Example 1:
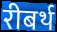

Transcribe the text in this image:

रीबर्थ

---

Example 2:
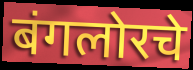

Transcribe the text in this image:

बंगलोरचे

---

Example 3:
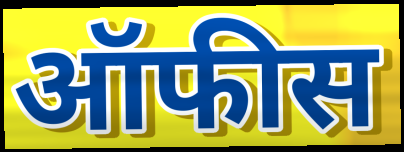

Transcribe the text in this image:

ऑफीस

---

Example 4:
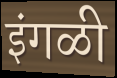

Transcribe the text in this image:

इंगळी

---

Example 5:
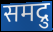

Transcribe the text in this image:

समद्रु